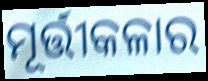
ମୂର୍ତ୍ତୀକଳାର